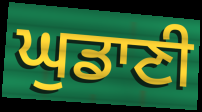
ਘੁਡਾਣੀ